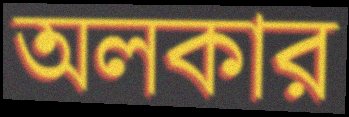
অলকার